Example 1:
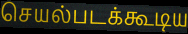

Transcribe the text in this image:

செயல்படக்கூடிய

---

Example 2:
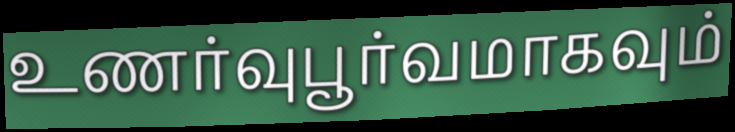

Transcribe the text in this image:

உணர்வுபூர்வமாகவும்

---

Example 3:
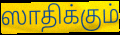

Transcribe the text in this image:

ஸாதிக்கும்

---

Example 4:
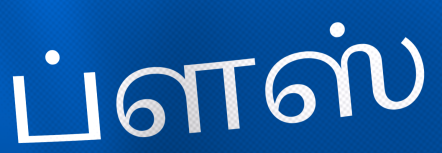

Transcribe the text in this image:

ப்ளஸ்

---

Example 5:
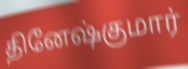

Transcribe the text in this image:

தினேஷ்குமார்